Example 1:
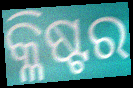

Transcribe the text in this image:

କ୍ଳିଷ୍ଟର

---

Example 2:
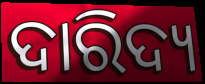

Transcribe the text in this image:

ଦାରିଦ୍ୟ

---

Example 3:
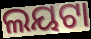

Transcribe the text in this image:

ଲୟଟା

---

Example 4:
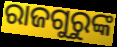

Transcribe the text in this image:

ରାଜଗୁରୁଙ୍କ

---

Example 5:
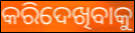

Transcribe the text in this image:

କରିଦେଖିବାକୁ